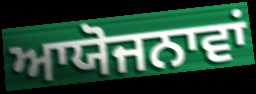
ਆਯੋਜਨਾਵਾਂ